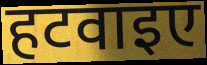
हटवाइए